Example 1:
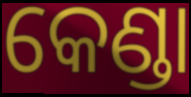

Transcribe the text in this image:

କେଣ୍ଡା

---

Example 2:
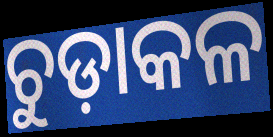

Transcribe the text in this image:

ଚୁଡ଼ାକଳ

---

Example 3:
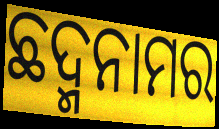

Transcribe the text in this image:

ଛଦ୍ମନାମର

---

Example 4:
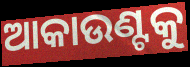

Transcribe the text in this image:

ଆକାଉଣ୍ଟକୁ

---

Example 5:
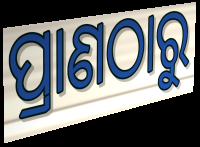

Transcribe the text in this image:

ପ୍ରାଣଠାରୁ